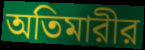
অতিমারীর